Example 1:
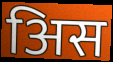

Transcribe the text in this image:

अिस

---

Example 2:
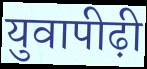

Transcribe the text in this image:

युवापीढ़ी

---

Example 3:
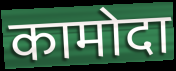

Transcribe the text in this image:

कामोदा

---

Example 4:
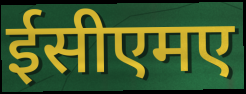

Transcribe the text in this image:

ईसीएमए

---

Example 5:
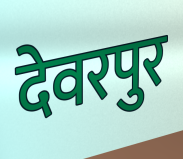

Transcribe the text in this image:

देवरपुर